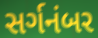
સર્ગનંબર